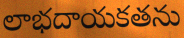
లాభదాయకతను